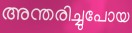
അന്തരിച്ചുപോയ